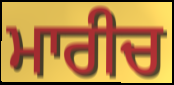
ਮਾਰੀਚ